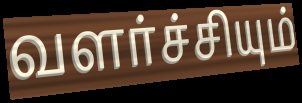
வளர்ச்சியும்